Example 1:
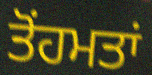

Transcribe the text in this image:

ਤੋਂਹਮਤਾਂ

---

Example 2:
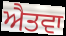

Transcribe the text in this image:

ਐਤਵਾ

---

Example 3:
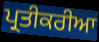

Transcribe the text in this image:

ਪ੍ਰਤੀਕਰੀਆ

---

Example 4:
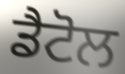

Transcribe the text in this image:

ਡੈਟੋਲ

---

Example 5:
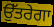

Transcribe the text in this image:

ਉੱਤਰੇਗਾ